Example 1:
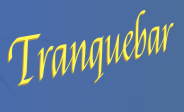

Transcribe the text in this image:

Tranquebar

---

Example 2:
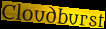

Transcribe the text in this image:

Cloudburst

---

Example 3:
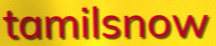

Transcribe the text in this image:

tamilsnow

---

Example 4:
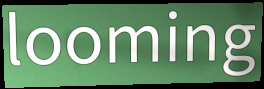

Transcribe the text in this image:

looming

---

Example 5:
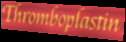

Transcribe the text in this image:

Thromboplastin